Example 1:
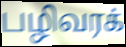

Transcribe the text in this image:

பழிவரக்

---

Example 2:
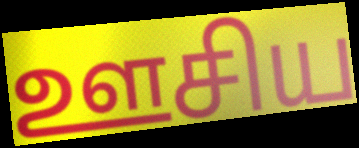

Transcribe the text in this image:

ஊசிய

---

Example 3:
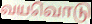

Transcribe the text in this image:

வயவொடு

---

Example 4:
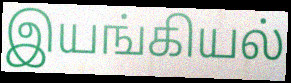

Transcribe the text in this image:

இயங்கியல்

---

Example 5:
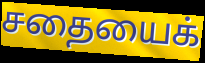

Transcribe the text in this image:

சதையைக்